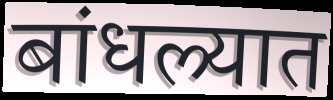
बांधल्यात